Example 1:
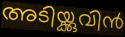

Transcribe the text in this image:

അടിയ്ക്കുവിൻ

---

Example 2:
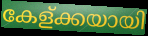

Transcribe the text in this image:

കേള്ക്കയായി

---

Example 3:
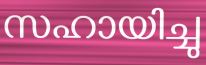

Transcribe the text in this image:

സഹായിച്ചു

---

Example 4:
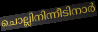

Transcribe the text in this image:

ചൊല്ലിനിന്നീടിനാർ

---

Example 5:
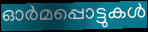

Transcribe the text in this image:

ഓർമപ്പൊട്ടുകൾ